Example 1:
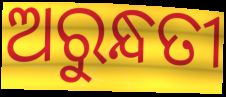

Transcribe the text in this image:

ଅରୁନ୍ଧତୀ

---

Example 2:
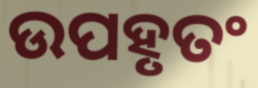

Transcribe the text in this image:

ଉପହୃତଂ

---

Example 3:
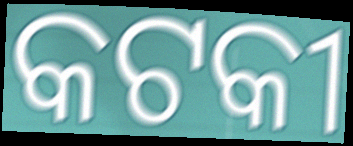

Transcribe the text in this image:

କଟକୀ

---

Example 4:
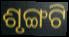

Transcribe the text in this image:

ଶୃଙ୍ଗଟି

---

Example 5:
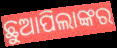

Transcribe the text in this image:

ଛୁଆପିଲାଙ୍କର